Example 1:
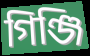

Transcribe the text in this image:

গিঞ্জি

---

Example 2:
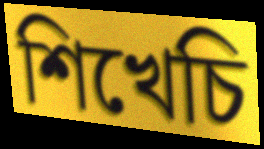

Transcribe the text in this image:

শিখেচি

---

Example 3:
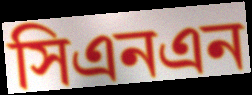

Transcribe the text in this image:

সিএনএন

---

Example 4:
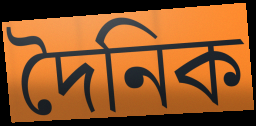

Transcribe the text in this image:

দৈনিক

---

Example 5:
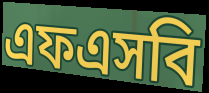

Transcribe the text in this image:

এফএসবি